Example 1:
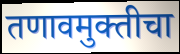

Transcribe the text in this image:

तणावमुक्तीचा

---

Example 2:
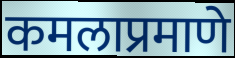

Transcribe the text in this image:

कमलाप्रमाणे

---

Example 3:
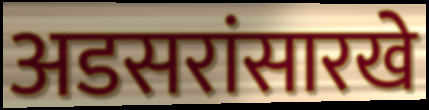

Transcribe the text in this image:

अडसरांसारखे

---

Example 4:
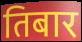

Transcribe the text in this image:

तिबार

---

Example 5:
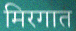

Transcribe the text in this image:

मिरगात